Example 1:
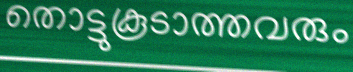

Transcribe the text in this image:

തൊട്ടുകൂടാത്തവരും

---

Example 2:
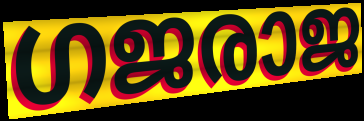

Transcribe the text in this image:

ഗജരാജ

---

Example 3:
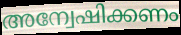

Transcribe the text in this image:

അന്വേഷിക്കണം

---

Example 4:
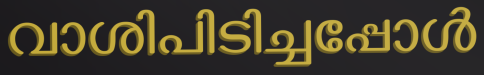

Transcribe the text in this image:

വാശിപിടിച്ചപ്പോൾ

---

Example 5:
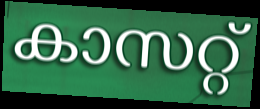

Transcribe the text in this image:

കാസറ്റ്